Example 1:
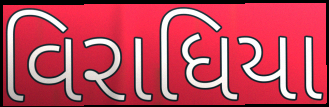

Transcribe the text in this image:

વિરાધિયા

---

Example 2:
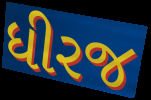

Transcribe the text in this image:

ધીરજ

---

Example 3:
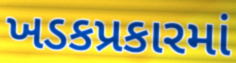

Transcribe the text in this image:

ખડકપ્રકારમાં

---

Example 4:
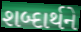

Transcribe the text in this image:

શબ્દાર્થને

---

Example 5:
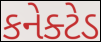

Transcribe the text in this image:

કનેક્ટેડ